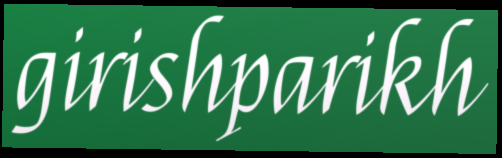
girishparikh